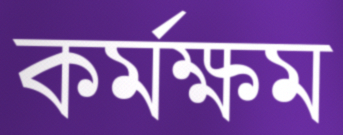
কর্মক্ষম